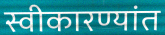
स्वीकारण्यांत